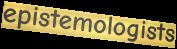
epistemologists